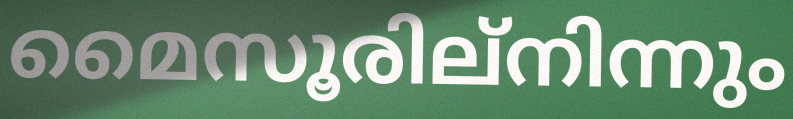
മൈസൂരില്നിന്നും